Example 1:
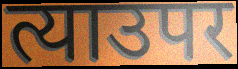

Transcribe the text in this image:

त्याउपर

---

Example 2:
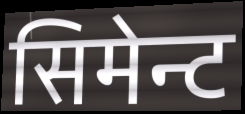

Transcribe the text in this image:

सिमेन्ट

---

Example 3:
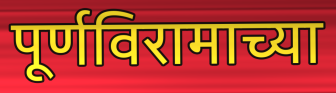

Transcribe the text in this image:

पूर्णविरामाच्या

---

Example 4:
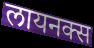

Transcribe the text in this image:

लायनक्स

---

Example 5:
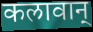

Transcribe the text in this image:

कलावान्